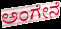
ಅಂಗೇನೆ